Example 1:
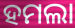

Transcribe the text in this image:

ହମଲା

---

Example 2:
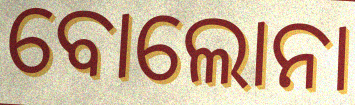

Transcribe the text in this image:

ବୋଲୋନା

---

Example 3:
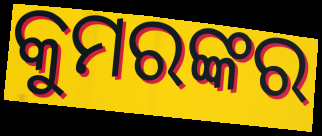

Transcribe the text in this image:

କୁମରଙ୍କର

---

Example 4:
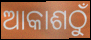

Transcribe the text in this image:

ଆକାଶଠୁଁ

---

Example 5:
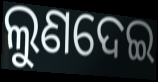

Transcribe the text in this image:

ଲୁଣଦେଇ